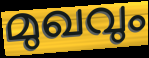
മുഖവും